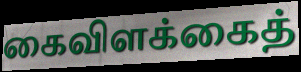
கைவிளக்கைத்